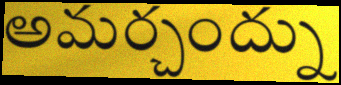
అమర్చంద్ను